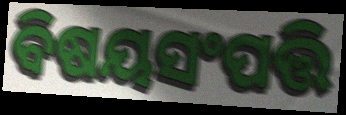
ବିଷୟସଂପତ୍ତି